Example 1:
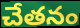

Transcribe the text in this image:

చేతనం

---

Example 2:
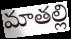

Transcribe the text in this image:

మాతల్లి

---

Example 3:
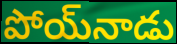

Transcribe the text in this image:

పోయ్‌నాడు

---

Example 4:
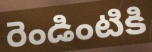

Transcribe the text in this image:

రెండింటికి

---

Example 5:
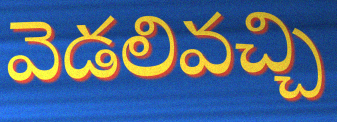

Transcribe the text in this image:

వెడలివచ్చి